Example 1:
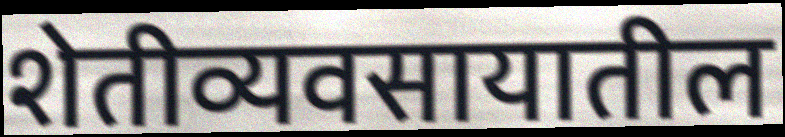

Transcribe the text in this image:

शेतीव्यवसायातील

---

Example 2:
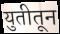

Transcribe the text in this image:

युतीतून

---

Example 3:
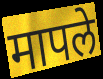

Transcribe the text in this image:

मापले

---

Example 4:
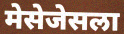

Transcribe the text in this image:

मेसेजेसला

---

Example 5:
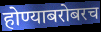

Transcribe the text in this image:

होण्याबरोबरच